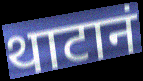
थाटानं